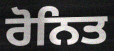
ਰੋਨਿਤ